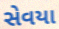
સેવયા